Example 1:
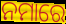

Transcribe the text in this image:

ନମାରେ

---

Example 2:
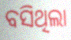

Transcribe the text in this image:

ବସିଥିଲା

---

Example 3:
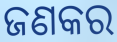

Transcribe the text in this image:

ଜଣକର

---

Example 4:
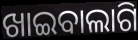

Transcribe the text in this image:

ଖାଇବାଲାଗି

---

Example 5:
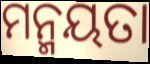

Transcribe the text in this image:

ମନ୍ମୟତା